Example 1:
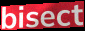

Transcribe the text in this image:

bisect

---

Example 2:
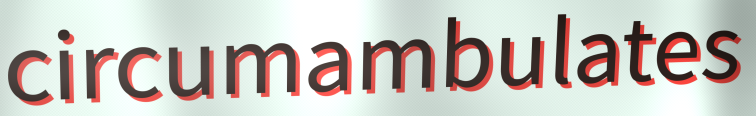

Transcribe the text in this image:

circumambulates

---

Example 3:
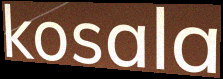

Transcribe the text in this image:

kosala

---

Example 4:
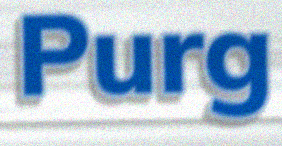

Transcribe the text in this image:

Purg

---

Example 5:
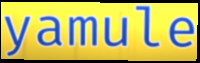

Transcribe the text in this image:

yamule